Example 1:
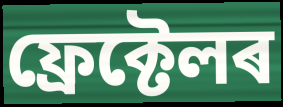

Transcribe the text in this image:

ফ্ৰেক্টেলৰ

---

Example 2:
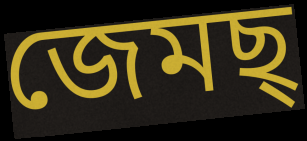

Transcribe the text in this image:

জেমছ্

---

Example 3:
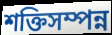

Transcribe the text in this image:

শক্তিসম্পন্ন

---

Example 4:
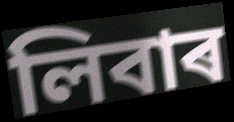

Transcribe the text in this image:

লিবাৰ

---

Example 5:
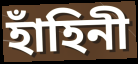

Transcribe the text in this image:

হাঁহিনী